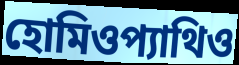
হোমিওপ্যাথিও